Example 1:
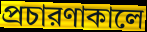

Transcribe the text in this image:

প্রচারণাকালে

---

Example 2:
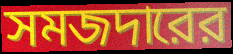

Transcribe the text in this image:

সমজদারের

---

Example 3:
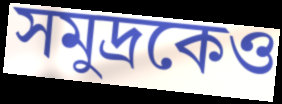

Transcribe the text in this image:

সমুদ্রকেও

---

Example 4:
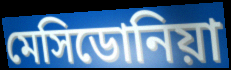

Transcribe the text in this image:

মেসিডোনিয়া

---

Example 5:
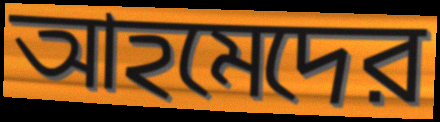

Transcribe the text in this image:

আহমেদের